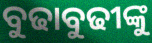
ବୁଢାବୁଢୀଙ୍କୁ